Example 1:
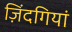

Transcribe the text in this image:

ज़िंदगियां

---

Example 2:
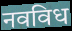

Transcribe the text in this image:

नवविध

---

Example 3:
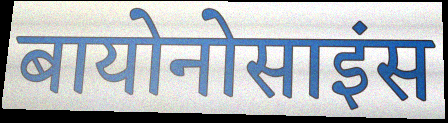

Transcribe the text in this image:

बायोनोसाइंस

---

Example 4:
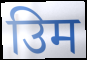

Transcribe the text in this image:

उिम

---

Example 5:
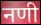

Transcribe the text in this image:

नणी